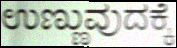
ಉಣ್ಣುವುದಕ್ಕೆ